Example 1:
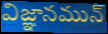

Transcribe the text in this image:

విజ్ఞానమున్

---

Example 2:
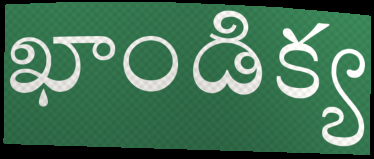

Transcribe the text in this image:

ఖాండిక్య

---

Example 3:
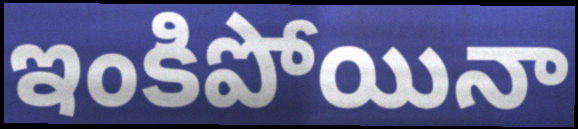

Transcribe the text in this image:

ఇంకిపోయినా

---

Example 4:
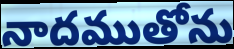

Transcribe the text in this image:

నాదముతోను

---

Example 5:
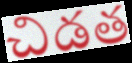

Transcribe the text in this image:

చిడత